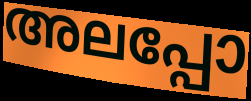
അലപ്പോ